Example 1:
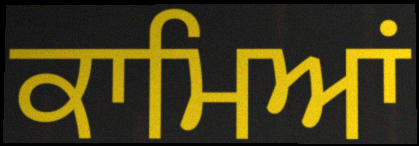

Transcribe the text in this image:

ਕਾਮਿਆਂ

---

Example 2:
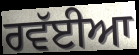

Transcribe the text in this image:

ਰਵੱਈਆ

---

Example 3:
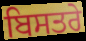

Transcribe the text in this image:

ਬਿਸਤਰੇ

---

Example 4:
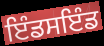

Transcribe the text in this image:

ਇੰਡਸਇੰਡ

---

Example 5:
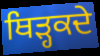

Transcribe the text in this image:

ਥਿੜ੍ਹਕਦੇ